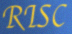
RISC